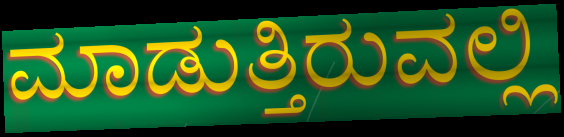
ಮಾಡುತ್ತಿರುವಲ್ಲಿ